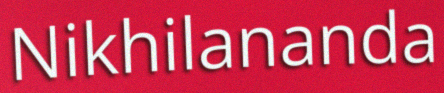
Nikhilananda